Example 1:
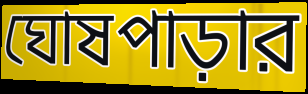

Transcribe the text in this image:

ঘোষপাড়ার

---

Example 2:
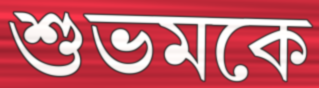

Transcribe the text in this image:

শুভমকে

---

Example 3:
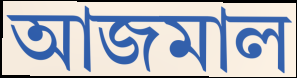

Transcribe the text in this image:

আজমাল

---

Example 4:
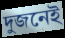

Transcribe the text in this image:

দুজনেই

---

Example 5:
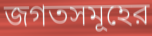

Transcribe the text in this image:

জগতসমূহের